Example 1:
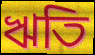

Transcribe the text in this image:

ঋতি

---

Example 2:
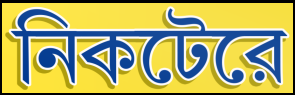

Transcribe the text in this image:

নিকটেরে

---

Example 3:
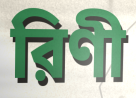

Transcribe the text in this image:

রিণী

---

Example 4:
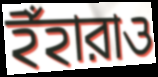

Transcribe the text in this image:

ইঁহারাও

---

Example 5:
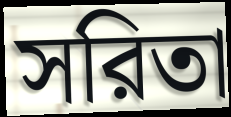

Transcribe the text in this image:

সরিতা